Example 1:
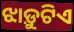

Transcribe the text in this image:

ଝାଡ଼ୁଟିଏ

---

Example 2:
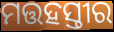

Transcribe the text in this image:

ମତ୍ତହସ୍ତୀର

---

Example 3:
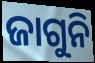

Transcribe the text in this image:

ଜାଗୁନି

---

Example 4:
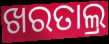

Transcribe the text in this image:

ଖରତାଲ୍ର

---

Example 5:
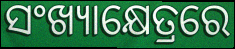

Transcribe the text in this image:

ସଂଖ୍ୟାକ୍ଷେତ୍ରରେ